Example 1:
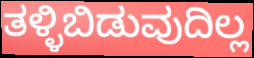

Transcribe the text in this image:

ತಳ್ಳಿಬಿಡುವುದಿಲ್ಲ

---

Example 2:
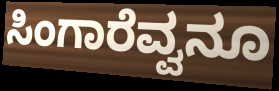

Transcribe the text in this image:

ಸಿಂಗಾರೆವ್ವನೂ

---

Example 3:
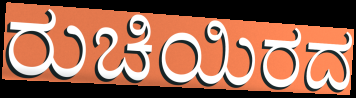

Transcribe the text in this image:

ರುಚಿಯಿರದ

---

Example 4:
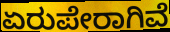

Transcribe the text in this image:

ಏರುಪೇರಾಗಿವೆ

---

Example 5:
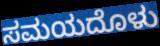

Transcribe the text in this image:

ಸಮಯದೊಳು